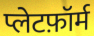
प्लेटफ़ॉर्म